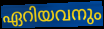
ഏറിയവനും